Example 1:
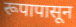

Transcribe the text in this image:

रूपापासून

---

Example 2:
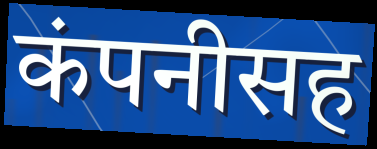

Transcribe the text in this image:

कंपनीसह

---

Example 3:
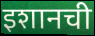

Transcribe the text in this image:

इशानची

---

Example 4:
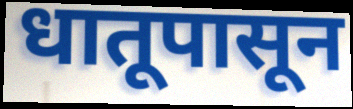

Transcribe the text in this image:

धातूपासून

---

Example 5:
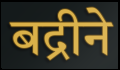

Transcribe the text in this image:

बद्रीने